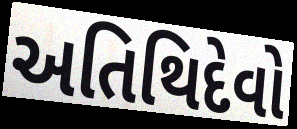
અતિથિદેવો